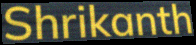
Shrikanth